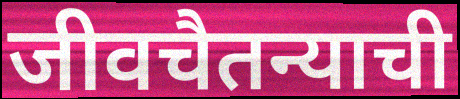
जीवचैतन्याची